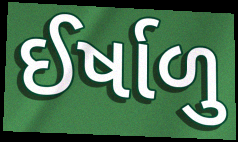
ઈર્ષાળુ